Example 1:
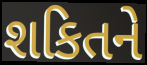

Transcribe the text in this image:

શકિતને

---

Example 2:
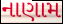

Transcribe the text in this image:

નાણામ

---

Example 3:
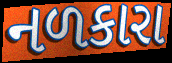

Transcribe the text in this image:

નળકારા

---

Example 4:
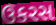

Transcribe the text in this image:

ઉકરસ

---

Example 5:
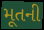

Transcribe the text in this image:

મૂતની